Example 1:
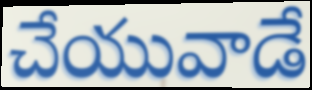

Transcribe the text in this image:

చేయువాడే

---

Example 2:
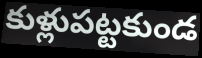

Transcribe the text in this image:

కుళ్లుపట్టకుండ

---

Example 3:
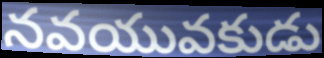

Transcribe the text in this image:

నవయువకుడు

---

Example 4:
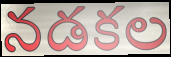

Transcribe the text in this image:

నడకల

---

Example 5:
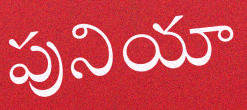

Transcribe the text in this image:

పునియా